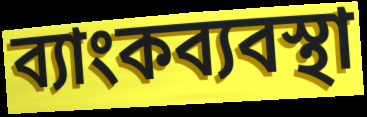
ব্যাংকব্যবস্থা